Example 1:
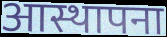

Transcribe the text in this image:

आस्थापना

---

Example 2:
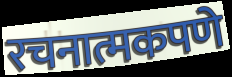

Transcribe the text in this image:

रचनात्मकपणे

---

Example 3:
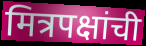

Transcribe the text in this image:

मित्रपक्षांची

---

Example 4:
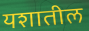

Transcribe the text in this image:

यशातील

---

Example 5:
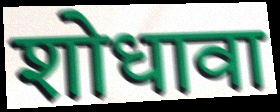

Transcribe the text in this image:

शोधावा